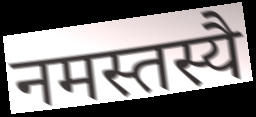
नमस्तस्यै